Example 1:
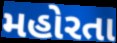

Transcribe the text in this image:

મહોરતા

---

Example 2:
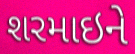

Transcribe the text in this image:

શરમાઇને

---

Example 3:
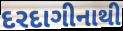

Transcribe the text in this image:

દરદાગીનાથી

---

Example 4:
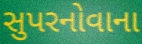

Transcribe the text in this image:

સુપરનોવાના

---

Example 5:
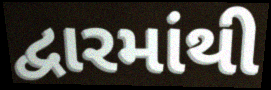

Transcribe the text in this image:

દ્વારમાંથી